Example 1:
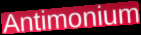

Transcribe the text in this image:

Antimonium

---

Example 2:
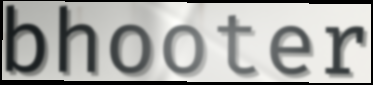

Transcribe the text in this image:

bhooter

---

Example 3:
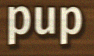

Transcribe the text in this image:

pup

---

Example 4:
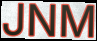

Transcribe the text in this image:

JNM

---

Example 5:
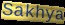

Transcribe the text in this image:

Sakhya